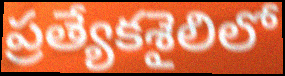
ప్రత్యేకశైలిలో